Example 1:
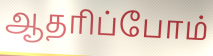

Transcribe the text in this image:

ஆதரிப்போம்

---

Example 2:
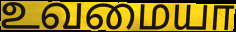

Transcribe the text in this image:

உவமையா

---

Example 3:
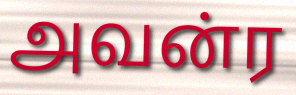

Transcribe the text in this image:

அவன்ர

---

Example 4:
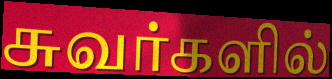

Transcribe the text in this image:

சுவர்களில்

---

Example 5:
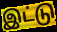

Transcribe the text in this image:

இட்டு